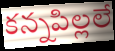
కన్నపిల్లలే